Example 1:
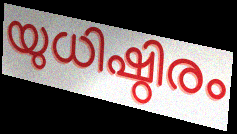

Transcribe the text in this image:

യുധിഷ്ഠിരം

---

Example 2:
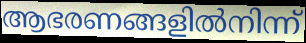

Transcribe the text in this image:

ആഭരണങ്ങളിൽനിന്ന്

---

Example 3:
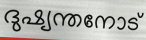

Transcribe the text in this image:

ദുഷ്യന്തനോട്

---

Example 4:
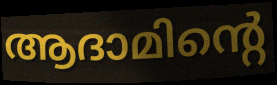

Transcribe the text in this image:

ആദാമിന്റെ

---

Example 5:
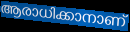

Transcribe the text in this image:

ആരാധിക്കാനാണ്